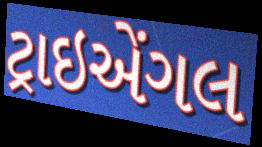
ટ્રાઇએંગલ